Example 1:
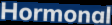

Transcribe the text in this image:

Hormonal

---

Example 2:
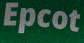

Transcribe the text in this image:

Epcot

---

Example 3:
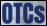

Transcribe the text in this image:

OTCs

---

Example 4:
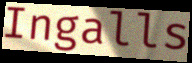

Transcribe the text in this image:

Ingalls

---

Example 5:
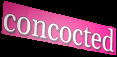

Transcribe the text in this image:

concocted